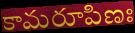
కామరూపిణః